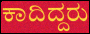
ಕಾದಿದ್ದರು